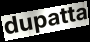
dupatta